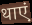
थाएं